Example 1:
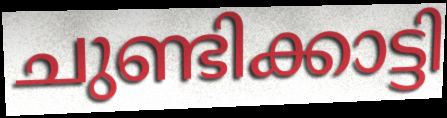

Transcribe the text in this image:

ചുണ്ടിക്കാട്ടി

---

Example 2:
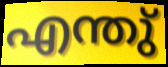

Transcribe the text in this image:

എന്തു്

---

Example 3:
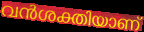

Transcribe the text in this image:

വൻശക്തിയാണ്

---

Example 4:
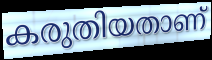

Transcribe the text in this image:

കരുതിയതാണ്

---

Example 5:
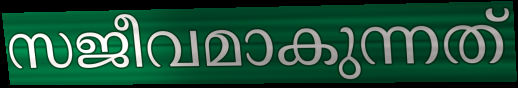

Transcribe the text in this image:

സജീവമാകുന്നത്